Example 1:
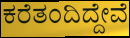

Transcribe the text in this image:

ಕರೆತಂದಿದ್ದೇವೆ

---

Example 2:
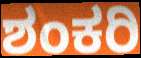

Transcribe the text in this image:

ಶಂಕರಿ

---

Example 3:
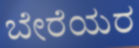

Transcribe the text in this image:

ಬೇರೆಯರ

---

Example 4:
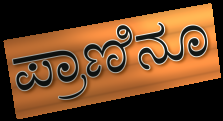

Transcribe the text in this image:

ಪ್ರಾಣಿನೂ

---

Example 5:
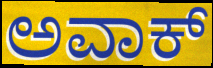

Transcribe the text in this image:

ಅವಾಕ್